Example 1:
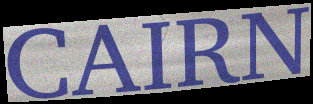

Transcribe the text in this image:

CAIRN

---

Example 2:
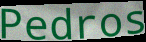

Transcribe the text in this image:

Pedros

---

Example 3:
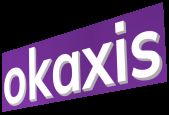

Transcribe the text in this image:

okaxis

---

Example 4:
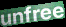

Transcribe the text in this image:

unfree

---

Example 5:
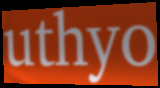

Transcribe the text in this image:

uthyo